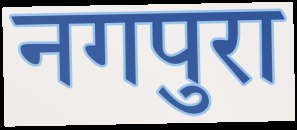
नगपुरा